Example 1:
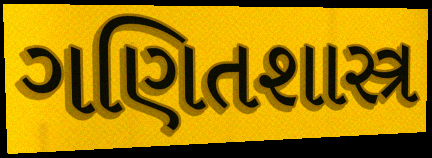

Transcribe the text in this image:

ગણિતશાસ્ત્ર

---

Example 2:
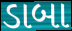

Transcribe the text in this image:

ડાબા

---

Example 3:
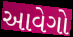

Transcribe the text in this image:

આવેગો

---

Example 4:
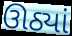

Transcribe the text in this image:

ઊઠ્યાં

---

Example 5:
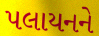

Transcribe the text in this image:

પલાયનને